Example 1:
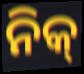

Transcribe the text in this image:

ନିକ୍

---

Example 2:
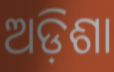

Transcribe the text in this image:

ଅଡ଼ିଶା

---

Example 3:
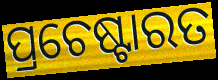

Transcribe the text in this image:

ପ୍ରଚେଷ୍ଟାରତ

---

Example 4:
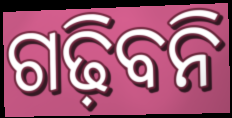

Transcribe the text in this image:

ଗଢ଼ିବନି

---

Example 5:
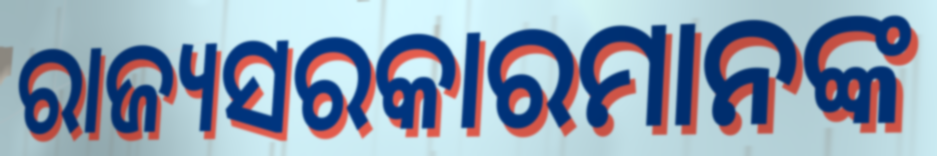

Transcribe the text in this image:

ରାଜ୍ୟସରକାରମାନଙ୍କ